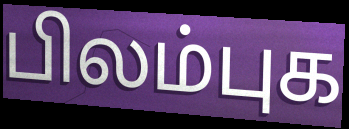
பிலம்புக